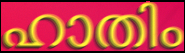
ഹാതിം